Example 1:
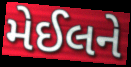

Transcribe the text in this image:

મેઈલને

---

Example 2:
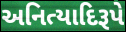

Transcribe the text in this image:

અનિત્યાદિરૂપે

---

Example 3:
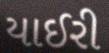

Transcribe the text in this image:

યાઈરી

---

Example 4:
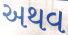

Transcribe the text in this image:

અથવ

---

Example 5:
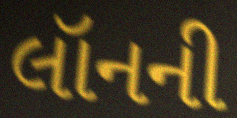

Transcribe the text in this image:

લૉનની